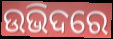
ଉଭିଦରେ